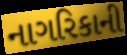
નાગરિકાની